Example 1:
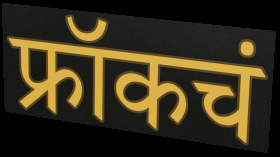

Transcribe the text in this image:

फ्रॉकचं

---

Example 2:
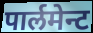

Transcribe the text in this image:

पार्लमेन्ट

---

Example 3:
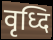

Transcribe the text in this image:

वृध्दि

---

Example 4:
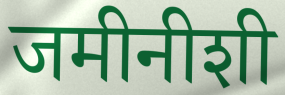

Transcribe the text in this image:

जमीनीशी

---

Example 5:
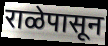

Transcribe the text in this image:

राळेपासून